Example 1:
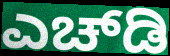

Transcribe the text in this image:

ಎಚ್‍ಡಿ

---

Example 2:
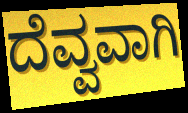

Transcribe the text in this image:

ದೆವ್ವವಾಗಿ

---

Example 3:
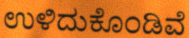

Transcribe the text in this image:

ಉಳಿದುಕೊಂಡಿವೆ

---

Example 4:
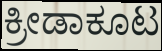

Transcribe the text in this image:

ಕ್ರೀಡಾಕೂಟ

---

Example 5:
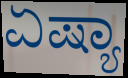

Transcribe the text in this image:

ಏಷ್ಯಾ